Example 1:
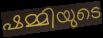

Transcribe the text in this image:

ഷമ്മിയുടെ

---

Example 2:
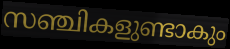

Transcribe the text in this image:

സഞ്ചികളുണ്ടാകും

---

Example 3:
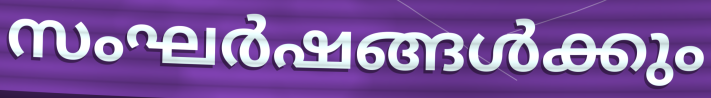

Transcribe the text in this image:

സംഘർഷങ്ങൾക്കും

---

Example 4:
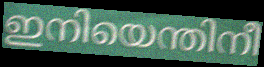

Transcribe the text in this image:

ഇനിയെന്തിനീ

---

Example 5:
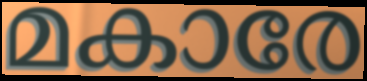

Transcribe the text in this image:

മകാരേ